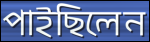
পাইছিলেন